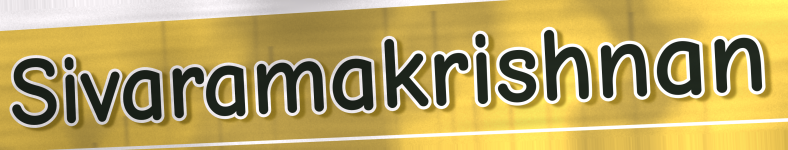
Sivaramakrishnan